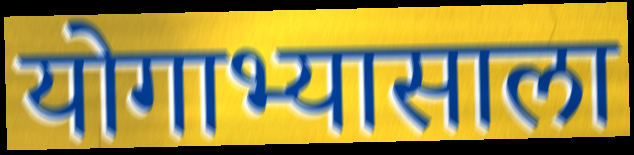
योगाभ्यासाला